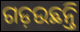
ଗଡ଼ଉଛନ୍ତି